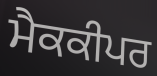
ਮੈਕਕੀਪਰ